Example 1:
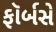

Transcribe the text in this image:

ફૉર્બસે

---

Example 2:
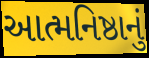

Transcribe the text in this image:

આત્મનિષ્ઠાનું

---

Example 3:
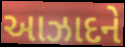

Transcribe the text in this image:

આઝાદને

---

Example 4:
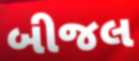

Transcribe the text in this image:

બીજલ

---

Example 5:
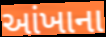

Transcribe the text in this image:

આંખાના